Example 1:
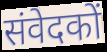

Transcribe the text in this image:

संवेदकों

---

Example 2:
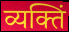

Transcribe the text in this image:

व्यक्तिं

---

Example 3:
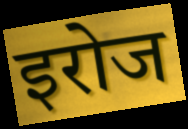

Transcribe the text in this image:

इरोज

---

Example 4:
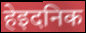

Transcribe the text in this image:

हेइदनिक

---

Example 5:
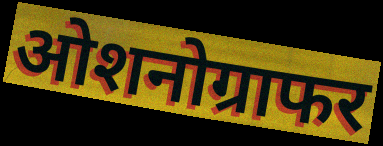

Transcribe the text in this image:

ओशनोग्राफर